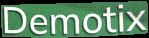
Demotix